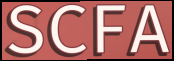
SCFA